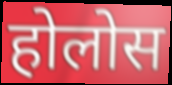
होलोस